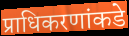
प्राधिकरणांकडे